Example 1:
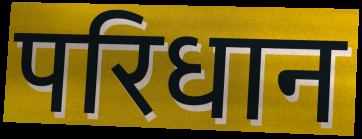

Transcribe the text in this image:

परिधान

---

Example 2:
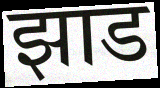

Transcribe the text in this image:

झाड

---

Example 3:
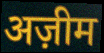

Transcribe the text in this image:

अज़ीम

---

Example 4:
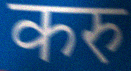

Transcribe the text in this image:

करु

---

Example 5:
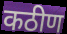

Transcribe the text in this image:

कठीण